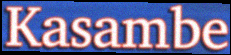
Kasambe